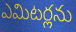
ఎమిటర్లను